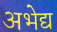
अभेद्य